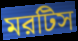
মরটিস